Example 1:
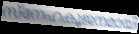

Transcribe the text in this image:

സ്നേഹകൂജനമായി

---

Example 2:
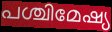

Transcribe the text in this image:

പശ്ചിമേഷ്യ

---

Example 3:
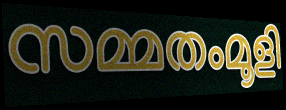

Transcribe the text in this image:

സമ്മതംമൂളി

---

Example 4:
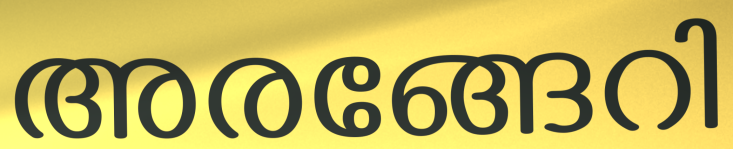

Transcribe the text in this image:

അരങ്ങേറി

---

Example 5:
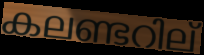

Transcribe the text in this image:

കലണ്ടറില്